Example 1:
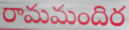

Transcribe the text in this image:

రామమందిర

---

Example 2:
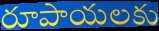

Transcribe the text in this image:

రూపాయలకు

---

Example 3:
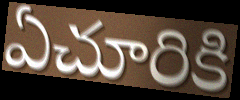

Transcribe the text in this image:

ఏచూరికి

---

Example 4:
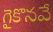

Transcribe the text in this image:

గైకొనవే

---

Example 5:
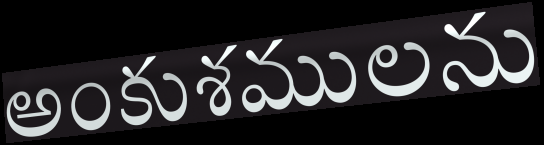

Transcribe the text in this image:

అంకుశములను